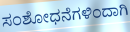
ಸಂಶೋಧನೆಗಳಿಂದಾಗಿ